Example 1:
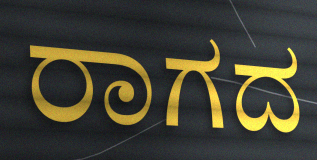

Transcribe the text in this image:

ರಾಗದ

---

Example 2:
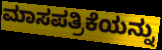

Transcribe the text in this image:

ಮಾಸಪತ್ರಿಕೆಯನ್ನು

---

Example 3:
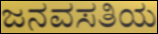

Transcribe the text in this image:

ಜನವಸತಿಯ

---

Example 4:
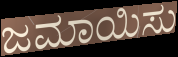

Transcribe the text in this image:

ಜಮಾಯಿಸು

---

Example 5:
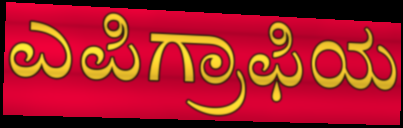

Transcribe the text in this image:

ಎಪಿಗ್ರಾಫಿಯ